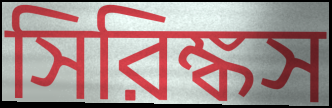
সিরিঙ্কস